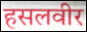
हसलवीर